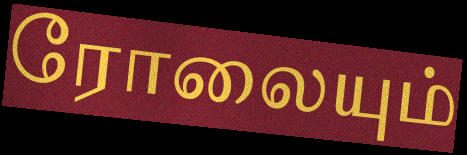
ரோலையும்